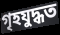
গৃহযুদ্ধত